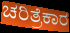
ಚರಿತ್ರೆಕಾರ